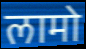
लामो